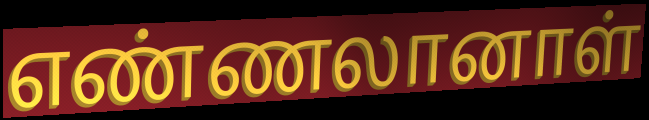
எண்ணலானாள்